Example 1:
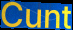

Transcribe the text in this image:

Cunt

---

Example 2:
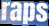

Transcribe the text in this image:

raps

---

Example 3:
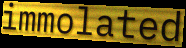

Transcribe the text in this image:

immolated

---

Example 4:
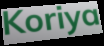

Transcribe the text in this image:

Koriya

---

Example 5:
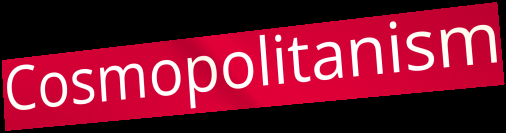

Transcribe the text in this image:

Cosmopolitanism